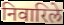
निवारिले